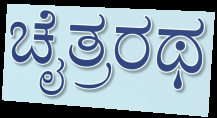
ಚೈತ್ರರಥ